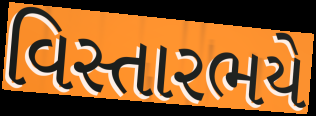
વિસ્તારભયે